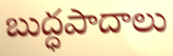
బుద్ధపాదాలు